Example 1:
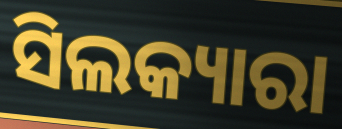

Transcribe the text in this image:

ସିଲକ୍ୟାରା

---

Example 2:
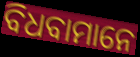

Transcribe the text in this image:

ବିଧବାମାନେ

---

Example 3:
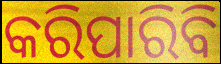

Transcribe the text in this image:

କରିପାରିବି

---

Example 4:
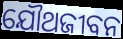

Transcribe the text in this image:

ଯୌଥଜୀବନ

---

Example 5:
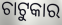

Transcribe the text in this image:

ଚାଟୁକାର